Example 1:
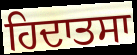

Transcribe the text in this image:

ਹਿਦਾਤਸਾ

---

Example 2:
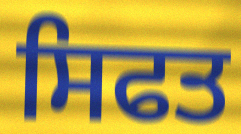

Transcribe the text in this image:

ਸਿਫਤ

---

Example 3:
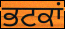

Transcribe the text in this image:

ਭਟਕਾਂ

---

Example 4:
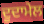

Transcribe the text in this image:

ਦੂਦਾਮੇਲ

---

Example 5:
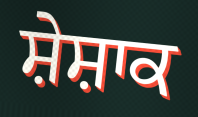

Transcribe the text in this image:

ਸ਼ੇਸ਼ਾਕ